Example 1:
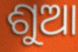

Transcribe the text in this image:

ଶୁଆ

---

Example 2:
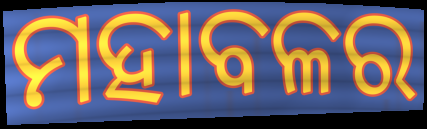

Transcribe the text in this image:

ମହାବଳର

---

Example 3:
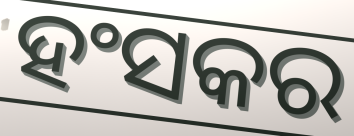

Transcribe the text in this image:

ହଂସକର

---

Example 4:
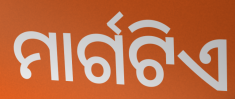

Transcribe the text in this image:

ମାର୍ଗଟିଏ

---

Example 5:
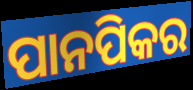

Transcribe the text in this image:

ପାନପିକର